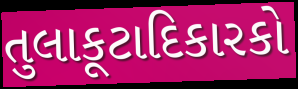
તુલાકૂટાદિકારકો